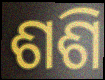
ଶଶି